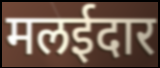
मलईदार